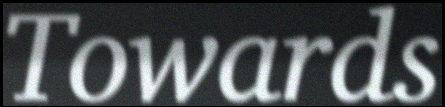
Towards